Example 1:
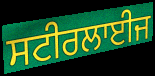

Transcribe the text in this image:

ਸਟੀਰਲਾਈਜ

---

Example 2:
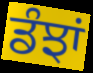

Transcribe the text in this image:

ਡੰਝਾਂ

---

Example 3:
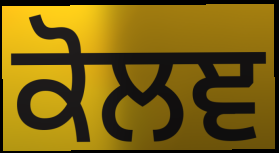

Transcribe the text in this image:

ਕੋਲਞ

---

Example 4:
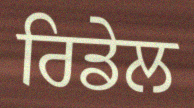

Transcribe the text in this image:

ਰਿਡੇਲ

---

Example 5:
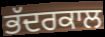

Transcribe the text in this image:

ਭੱਦਰਕਾਲ